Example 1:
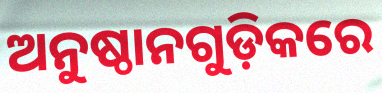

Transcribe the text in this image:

ଅନୁଷ୍ଠାନଗୁଡ଼ିକରେ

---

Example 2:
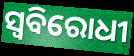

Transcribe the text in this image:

ସ୍ୱବିରୋଧୀ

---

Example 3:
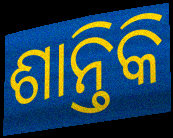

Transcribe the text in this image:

ଶାନ୍ତିକି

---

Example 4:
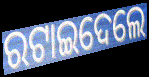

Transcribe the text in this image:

ରଟାଇଦେଲେ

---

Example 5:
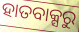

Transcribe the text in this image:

ହାତବାକ୍ସରୁ